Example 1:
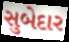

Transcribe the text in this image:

સુબેદાર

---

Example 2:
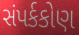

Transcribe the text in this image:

સંપર્કકોણ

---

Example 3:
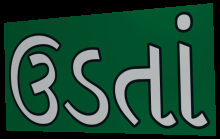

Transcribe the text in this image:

ઉડતાં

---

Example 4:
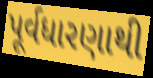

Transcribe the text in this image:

પૂર્વધારણાથી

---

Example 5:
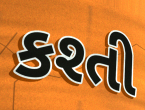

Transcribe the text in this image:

કશ્તી